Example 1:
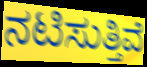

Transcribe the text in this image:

ನಟಿಸುತ್ತಿವೆ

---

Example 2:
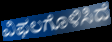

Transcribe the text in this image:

ವಿಫಲಗೊಳಿಸಿದೆ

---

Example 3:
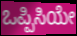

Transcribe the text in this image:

ಒಪ್ಪಿಸಿಯೇ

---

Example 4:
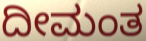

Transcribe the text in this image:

ದೀಮಂತ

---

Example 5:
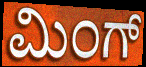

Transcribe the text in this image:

ಮಿಂಗ್